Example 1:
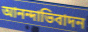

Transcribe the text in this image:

আনন্দাভিবাদন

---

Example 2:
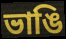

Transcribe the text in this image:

ভাঙি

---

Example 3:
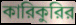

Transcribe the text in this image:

কারিকুরির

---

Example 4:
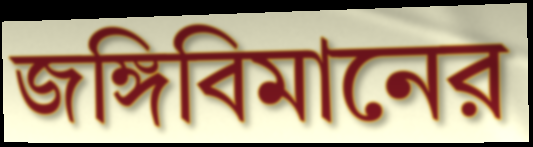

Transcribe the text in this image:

জঙ্গিবিমানের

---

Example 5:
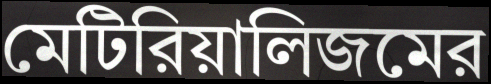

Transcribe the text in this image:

মেটিরিয়ালিজমের